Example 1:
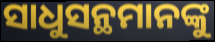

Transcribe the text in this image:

ସାଧୁସନ୍ଥମାନଙ୍କୁ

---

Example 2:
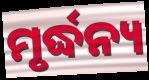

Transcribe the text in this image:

ମୃର୍ଦ୍ଧନ୍ୟ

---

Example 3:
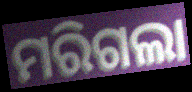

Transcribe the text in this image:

ମରିଗଲା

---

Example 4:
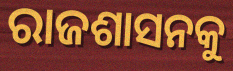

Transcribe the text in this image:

ରାଜଶାସନକୁ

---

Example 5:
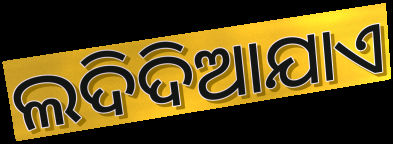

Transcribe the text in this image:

ଲଦିଦିଆଯାଏ